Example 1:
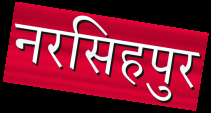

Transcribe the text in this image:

नरसिहपुर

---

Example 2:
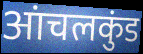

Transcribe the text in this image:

आंचलकुंड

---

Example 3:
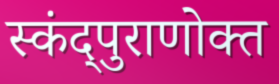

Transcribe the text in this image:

स्कंद्पुराणोक्त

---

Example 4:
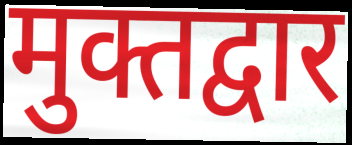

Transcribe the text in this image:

मुक्तद्वार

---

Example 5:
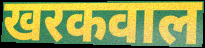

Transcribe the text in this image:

खरकवाल